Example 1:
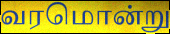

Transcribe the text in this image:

வரமொன்று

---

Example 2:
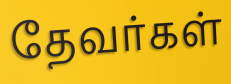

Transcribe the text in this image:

தேவர்கள்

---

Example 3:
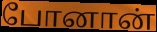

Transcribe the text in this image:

போனான்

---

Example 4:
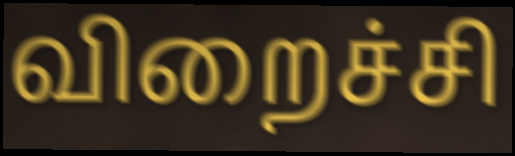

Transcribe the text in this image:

விறைச்சி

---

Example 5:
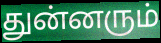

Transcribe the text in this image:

துன்னரும்